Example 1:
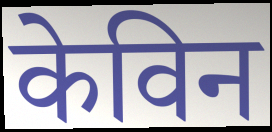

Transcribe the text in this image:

केविन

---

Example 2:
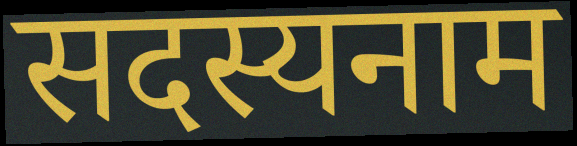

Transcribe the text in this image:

सदस्यनाम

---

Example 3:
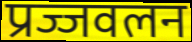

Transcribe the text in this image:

प्रज्‍जवलन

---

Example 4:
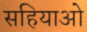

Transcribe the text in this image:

सहियाओ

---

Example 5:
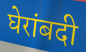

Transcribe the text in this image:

घेरांबदी